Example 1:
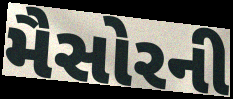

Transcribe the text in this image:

મૈસોરની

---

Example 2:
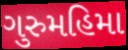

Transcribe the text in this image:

ગુરુમહિમા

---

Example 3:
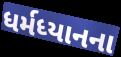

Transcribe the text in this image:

ધર્મધ્યાનના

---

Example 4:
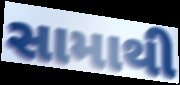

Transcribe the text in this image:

સામાથી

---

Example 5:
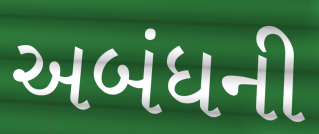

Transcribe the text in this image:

અબંધની